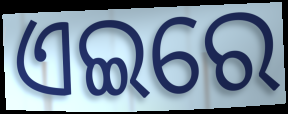
ଏଇରେ